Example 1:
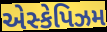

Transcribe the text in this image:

એસ્કેપિઝમ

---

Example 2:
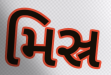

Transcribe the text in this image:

મિસ્ર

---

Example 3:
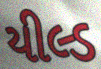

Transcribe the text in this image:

યીલ્ડ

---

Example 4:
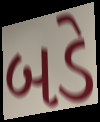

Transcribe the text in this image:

બડે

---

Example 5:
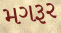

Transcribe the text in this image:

મગરૂર